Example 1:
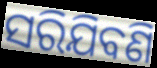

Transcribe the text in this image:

ସରିଯିବଣି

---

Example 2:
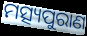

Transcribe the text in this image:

ମତ୍ସ୍ୟପୁରାଣ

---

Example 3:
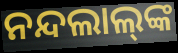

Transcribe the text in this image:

ନନ୍ଦଲାଲ୍‌ଙ୍କ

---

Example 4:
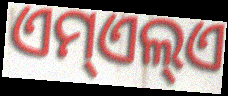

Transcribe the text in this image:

ଏମ୍ଏଲ୍ଏ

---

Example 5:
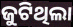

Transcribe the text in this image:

ଜୁଟିଥିଲା